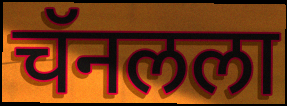
चॅनलला